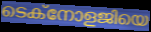
ടെക്‌നോളജിയെ